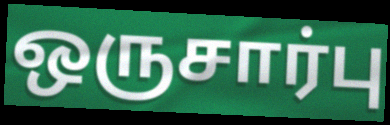
ஒருசார்பு